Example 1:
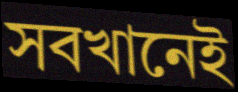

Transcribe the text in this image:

সবখানেই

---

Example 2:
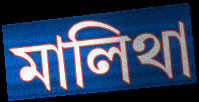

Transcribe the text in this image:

মালিথা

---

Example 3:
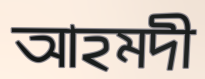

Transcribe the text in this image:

আহমদী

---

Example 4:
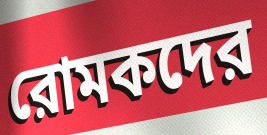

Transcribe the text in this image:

রোমকদের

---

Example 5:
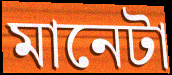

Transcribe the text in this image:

মানেটা